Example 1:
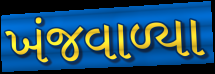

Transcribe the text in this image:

ખંજવાળ્યા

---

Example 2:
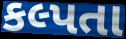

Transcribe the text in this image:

કલ્પતા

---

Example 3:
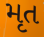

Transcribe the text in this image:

મૃત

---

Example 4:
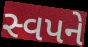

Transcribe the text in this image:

સ્વપને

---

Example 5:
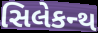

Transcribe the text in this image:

સિલેકન્થ